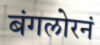
बंगलोरनं